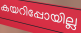
കയറിപ്പോയില്ല